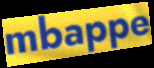
mbappe